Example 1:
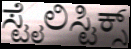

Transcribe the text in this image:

ಸ್ಟೈಲಿಸ್ಟಿಕ್ಸ್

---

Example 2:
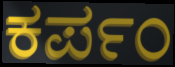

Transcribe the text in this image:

ಕರ್ಪಂ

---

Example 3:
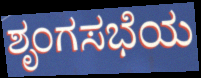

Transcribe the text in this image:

ಶೃಂಗಸಭೆಯ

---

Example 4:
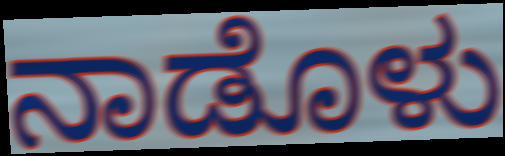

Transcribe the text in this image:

ನಾಡೊಳು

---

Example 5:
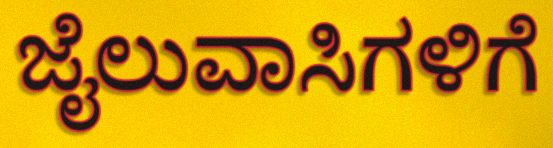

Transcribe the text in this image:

ಜೈಲುವಾಸಿಗಳಿಗೆ